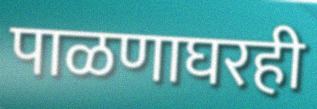
पाळणाघरही